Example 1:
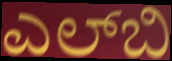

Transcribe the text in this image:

ಎಲ್‌ಬಿ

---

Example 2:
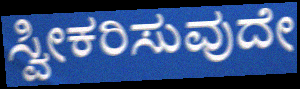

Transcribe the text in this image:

ಸ್ವೀಕರಿಸುವುದೇ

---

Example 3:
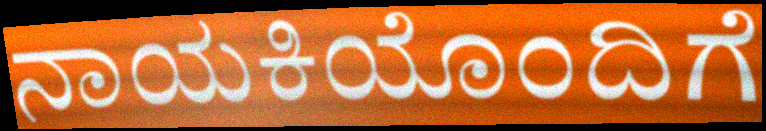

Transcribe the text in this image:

ನಾಯಕಿಯೊಂದಿಗೆ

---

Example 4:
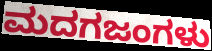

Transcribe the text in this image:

ಮದಗಜಂಗಳು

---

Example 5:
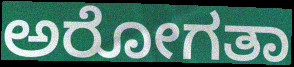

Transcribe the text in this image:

ಅರೋಗತಾ